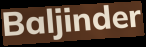
Baljinder